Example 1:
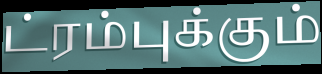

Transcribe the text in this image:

ட்ரம்புக்கும்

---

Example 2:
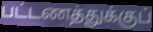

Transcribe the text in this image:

பட்டணத்துக்குப்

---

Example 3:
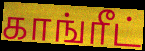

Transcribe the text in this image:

காங்ரீட்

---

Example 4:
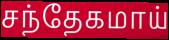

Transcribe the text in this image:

சந்தேகமாய்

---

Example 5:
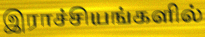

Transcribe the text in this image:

இராச்சியங்களில்